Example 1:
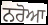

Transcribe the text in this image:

ਨਰੋਆ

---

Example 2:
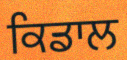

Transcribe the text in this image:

ਕਿਡਾਲ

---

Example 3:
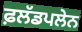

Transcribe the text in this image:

ਫ਼ਲੱਡਪਲੇਨ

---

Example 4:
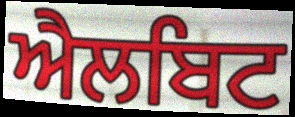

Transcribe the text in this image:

ਐਲਬਿਟ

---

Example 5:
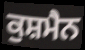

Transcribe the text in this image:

ਕੁਸ਼ਮੈਨ